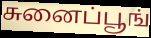
சுனைப்பூங்